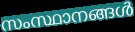
സംസ്ഥാനങ്ങൾ